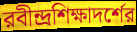
রবীন্দ্রশিক্ষাদর্শের